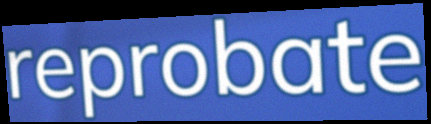
reprobate